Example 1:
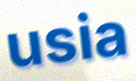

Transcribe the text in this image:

usia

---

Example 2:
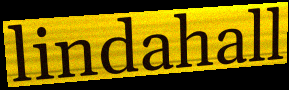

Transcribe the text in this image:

lindahall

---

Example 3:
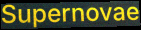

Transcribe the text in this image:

Supernovae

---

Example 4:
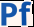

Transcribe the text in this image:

Pf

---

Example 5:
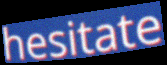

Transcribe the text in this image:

hesitate